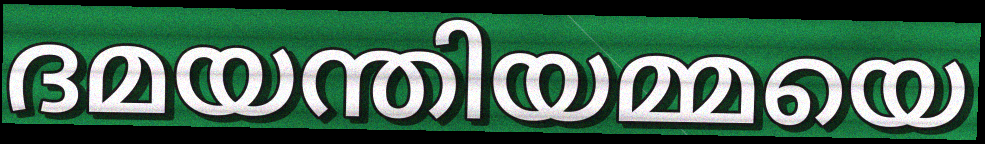
ദമയന്തിയമ്മയെ